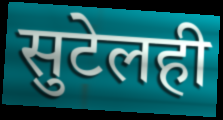
सुटेलही